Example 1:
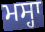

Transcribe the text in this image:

ਮਸ੍ਹਾ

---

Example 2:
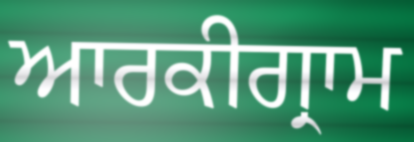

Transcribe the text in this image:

ਆਰਕੀਗ੍ਰਾਮ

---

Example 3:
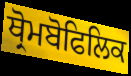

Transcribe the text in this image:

ਥ੍ਰੋਮਬੋਫਿਲਿਕ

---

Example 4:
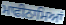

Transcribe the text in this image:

ਮਾਫੀਨਾਮਿਆਂ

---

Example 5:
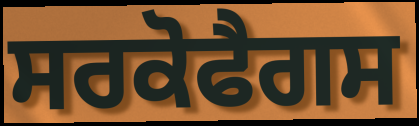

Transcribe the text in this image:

ਸਰਕੋਫੈਗਸ